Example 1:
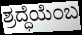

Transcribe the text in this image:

ಶ್ರದ್ಧೆಯೆಂಬ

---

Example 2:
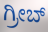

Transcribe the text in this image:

ಗ್ರೀಬ್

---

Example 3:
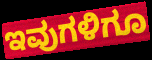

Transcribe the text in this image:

ಇವುಗಳಿಗೂ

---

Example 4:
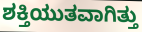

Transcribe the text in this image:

ಶಕ್ತಿಯುತವಾಗಿತ್ತು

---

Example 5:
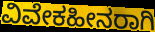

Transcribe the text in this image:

ವಿವೇಕಹೀನರಾಗಿ